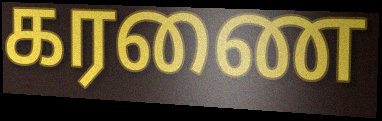
கரணை